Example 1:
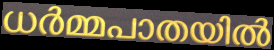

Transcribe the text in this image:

ധർമ്മപാതയിൽ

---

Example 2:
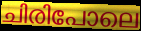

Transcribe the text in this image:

ചിരിപോലെ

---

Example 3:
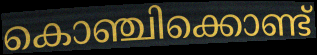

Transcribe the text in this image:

കൊഞ്ചിക്കൊണ്ട്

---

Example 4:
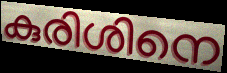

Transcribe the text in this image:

കുരിശിനെ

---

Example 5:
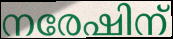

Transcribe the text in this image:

നരേഷിന്